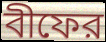
বীফের